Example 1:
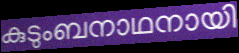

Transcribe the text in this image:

കുടുംബനാഥനായി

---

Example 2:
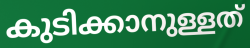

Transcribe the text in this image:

കുടിക്കാനുള്ളത്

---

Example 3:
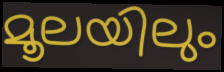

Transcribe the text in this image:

മൂലയിലും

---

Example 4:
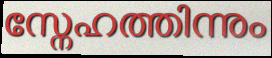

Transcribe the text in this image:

സ്നേഹത്തിന്നും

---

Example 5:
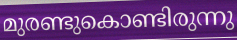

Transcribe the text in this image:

മുരണ്ടുകൊണ്ടിരുന്നു